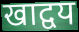
खाद्वय